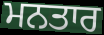
ਮਨਤਾਰ